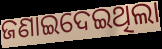
ଜଣାଇଦେଇଥିଲା